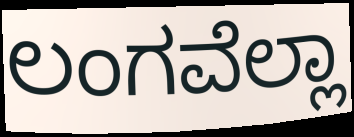
ಲಂಗವೆಲ್ಲಾ